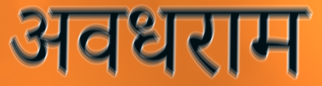
अवधराम